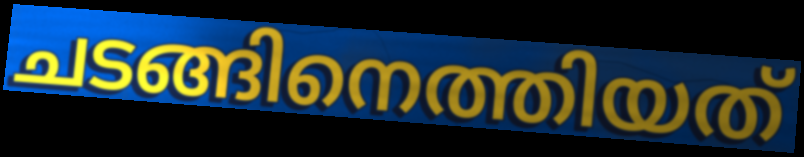
ചടങ്ങിനെത്തിയത്